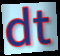
dt